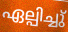
ഏല്പിച്ചു്